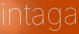
intaga